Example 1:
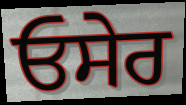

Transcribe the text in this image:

ਓਸੇਰ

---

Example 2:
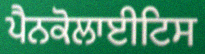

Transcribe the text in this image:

ਪੈਨਕੋਲਾਈਟਿਸ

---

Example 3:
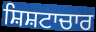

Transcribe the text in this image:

ਸ਼ਿਸ਼ਟਾਚਾਰ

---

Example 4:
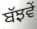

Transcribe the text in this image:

ਬੱਝਵੇਂ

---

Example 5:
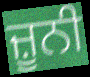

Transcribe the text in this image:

ਜ਼ੂਨੀ